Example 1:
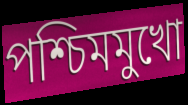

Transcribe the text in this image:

পশ্চিমমুখো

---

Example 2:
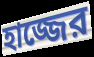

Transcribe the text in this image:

হাজ্জের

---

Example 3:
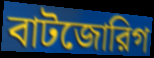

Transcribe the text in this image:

বাটজোরিগ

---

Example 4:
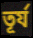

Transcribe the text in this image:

তূর্য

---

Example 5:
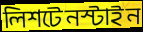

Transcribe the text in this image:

লিশটেনস্টাইন